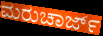
ಮರುಚಾರ್ಜ್